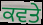
ਕਵਤੇ